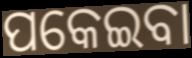
ପକେଇବା